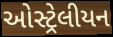
ઓસ્ટ્રેલીયન